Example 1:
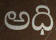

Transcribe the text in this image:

అధి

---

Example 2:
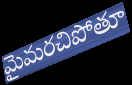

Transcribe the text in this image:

మైమరచిపోతూ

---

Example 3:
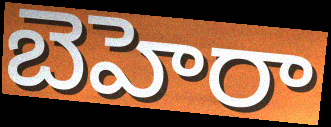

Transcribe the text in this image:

బెహెరా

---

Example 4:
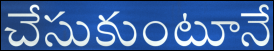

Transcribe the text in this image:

చేసుకుంటూనే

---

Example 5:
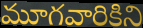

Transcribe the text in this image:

మూగవారికిని